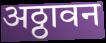
अठ्ठावन